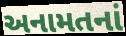
અનામતનાં